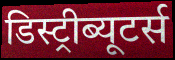
डिस्ट्रीब्यूटर्स